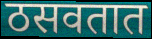
ठसवतात